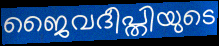
ജൈവദീപ്തിയുടെ